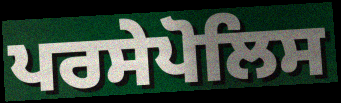
ਪਰਸੇਪੋਲਿਸ